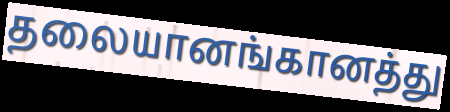
தலையானங்கானத்து